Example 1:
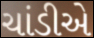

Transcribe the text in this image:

ચાંડીએ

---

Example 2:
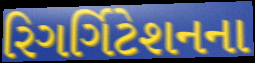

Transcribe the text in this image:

રિગર્ગિટેશનના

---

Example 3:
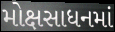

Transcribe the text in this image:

મોક્ષસાધનમાં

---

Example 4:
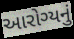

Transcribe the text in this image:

આરોગ્યનું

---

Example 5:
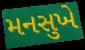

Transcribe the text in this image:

મનસુખે